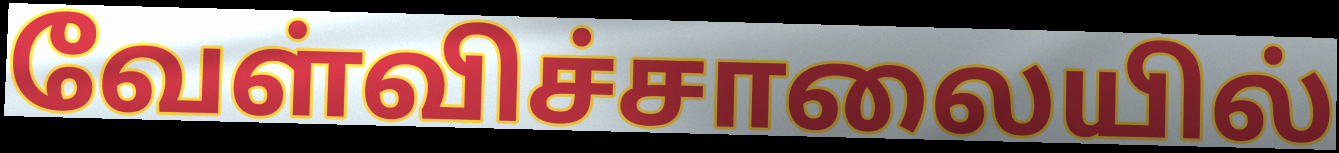
வேள்விச்சாலையில்